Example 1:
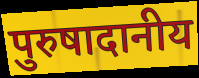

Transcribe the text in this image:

पुरुषादानीय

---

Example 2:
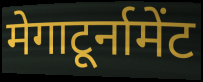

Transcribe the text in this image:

मेगाटूर्नामेंट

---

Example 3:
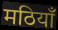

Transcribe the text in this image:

मठियाँ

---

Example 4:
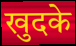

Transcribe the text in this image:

खुदके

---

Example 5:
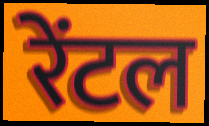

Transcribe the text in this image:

रेंटल